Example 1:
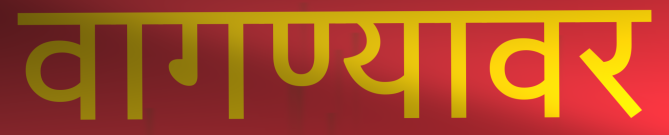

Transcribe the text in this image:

वागण्यावर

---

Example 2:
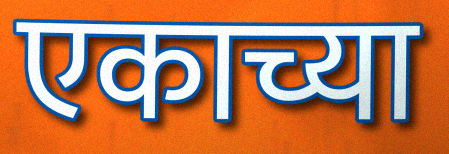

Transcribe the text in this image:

एकाच्या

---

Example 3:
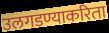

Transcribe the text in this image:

उलगडण्याकरिता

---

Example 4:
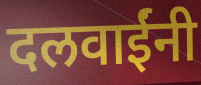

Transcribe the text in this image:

दलवाईंनी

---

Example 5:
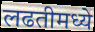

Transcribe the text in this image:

लढतीमध्ये